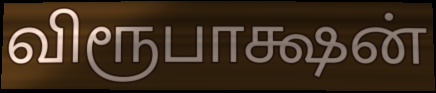
விரூபாக்ஷன்